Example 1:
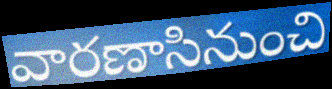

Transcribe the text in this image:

వారణాసినుంచి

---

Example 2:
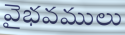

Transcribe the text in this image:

వైభవములు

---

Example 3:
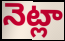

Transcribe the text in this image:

నెట్లా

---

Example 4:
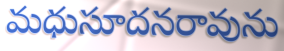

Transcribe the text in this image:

మధుసూదనరావును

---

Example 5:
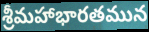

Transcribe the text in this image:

శ్రీమహాభారతమున